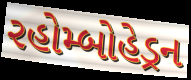
રહોમ્બોહેડ્રન